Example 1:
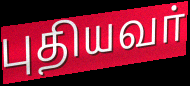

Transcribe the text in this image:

புதியவர்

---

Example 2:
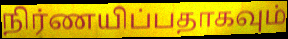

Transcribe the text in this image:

நிர்ணயிப்பதாகவும்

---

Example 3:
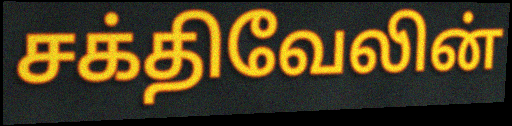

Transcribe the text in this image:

சக்திவேலின்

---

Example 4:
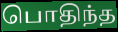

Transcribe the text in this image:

பொதிந்த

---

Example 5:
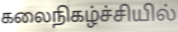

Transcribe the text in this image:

கலைநிகழ்ச்சியில்